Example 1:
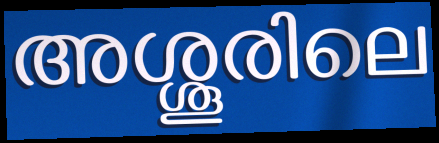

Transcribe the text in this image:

അശ്ശൂരിലെ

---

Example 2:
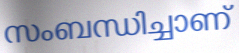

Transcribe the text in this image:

സംബന്ധിച്ചാണ്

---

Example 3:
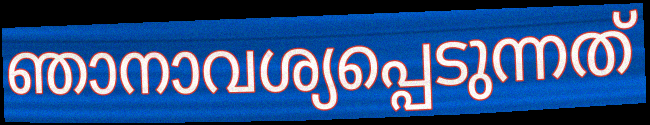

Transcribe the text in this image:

ഞാനാവശ്യപ്പെടുന്നത്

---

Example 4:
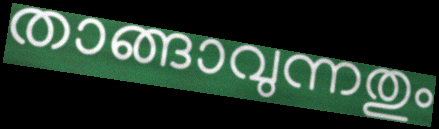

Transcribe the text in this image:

താങ്ങാവുന്നതും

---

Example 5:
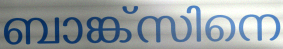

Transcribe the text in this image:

ബാങ്ക്സിനെ